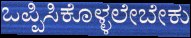
ಒಪ್ಪಿಸಿಕೊಳ್ಳಲೇಬೇಕು